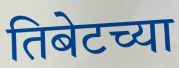
तिबेटच्या